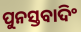
ପୁନସ୍ତବାଦିଂ